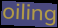
oiling